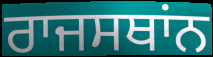
ਰਾਜਸਥਾਂਨ